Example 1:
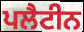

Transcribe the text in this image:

ਪਲੈਟੀਨ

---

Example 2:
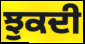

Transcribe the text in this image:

ਝੁਕਦੀ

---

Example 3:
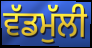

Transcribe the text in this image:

ਵੱਡਮੁੱਲੀ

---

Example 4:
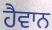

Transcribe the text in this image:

ਹੈਵਾਨ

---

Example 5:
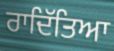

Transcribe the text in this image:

ਰਾਦਿੱਤਿਆ